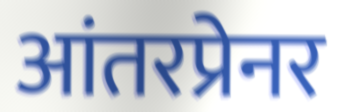
आंतरप्रेनर